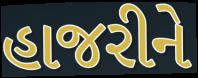
હાજરીને